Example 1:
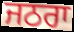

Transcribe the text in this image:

ਜਠਰਾ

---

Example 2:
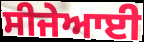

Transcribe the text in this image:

ਸੀਜੇਆਈ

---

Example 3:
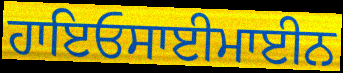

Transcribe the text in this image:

ਹਾਇਓਸਾਈਮਾਈਨ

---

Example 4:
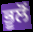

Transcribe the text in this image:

ਭੂਲੋਂ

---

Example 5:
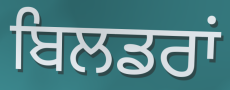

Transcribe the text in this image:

ਬਿਲਡਰਾਂ